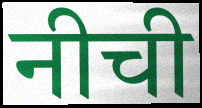
नीची